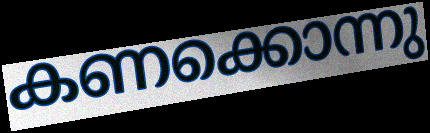
കണക്കൊന്നു